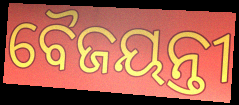
ବୈଜୟନ୍ତୀ